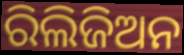
ରିଲିଜିଅନ